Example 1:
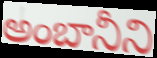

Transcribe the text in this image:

అంబానీని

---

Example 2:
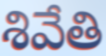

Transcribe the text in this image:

శివేతి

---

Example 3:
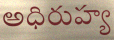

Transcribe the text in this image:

అధిరుహ్య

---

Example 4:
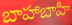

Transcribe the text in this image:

బాహాబాహి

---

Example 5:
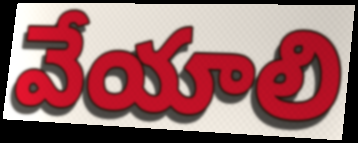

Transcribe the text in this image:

వేయాలి